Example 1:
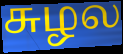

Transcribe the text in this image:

சுழல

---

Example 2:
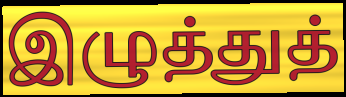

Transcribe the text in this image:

இழுத்துத்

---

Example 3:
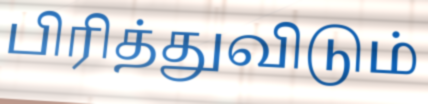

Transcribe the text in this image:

பிரித்துவிடும்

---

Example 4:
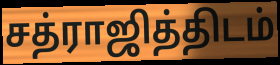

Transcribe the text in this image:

சத்ராஜித்திடம்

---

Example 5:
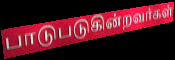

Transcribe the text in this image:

பாடுபடுகின்றவர்கள்